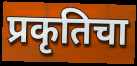
प्रकृतिचा